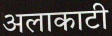
अलाकाटी